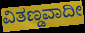
ವಿತಣ್ಡವಾದೀ